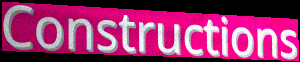
Constructions